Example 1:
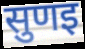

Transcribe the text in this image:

सुणइ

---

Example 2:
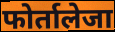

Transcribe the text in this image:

फोर्तालेजा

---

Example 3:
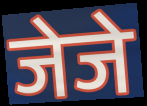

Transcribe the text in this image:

जेजे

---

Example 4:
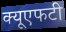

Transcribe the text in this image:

क्यूएफटी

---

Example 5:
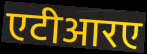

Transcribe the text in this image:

एटीआरए